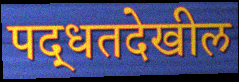
पद्धतदेखील